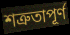
শত্রুতাপূর্ণ